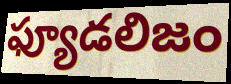
ఫ్యూడలిజం